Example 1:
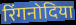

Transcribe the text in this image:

रिंगनोदिया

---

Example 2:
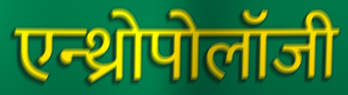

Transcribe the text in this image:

एन्थ्रोपोलॉजी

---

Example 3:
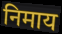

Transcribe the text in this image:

निमाय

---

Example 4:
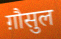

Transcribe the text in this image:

ग़ौसुल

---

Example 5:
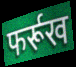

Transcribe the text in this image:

फर्रूख